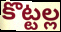
కొట్టల్ల